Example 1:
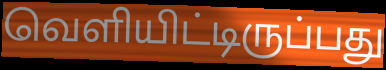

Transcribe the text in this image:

வெளியிட்டிருப்பது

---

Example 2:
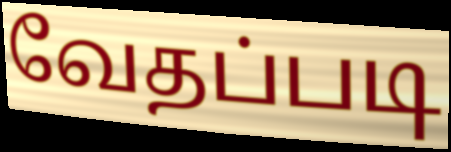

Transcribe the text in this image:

வேதப்படி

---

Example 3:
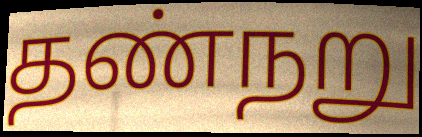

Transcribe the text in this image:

தண்நறு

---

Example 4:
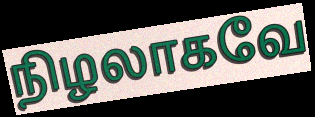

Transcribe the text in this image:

நிழலாகவே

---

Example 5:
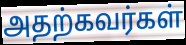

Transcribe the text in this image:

அதற்கவர்கள்